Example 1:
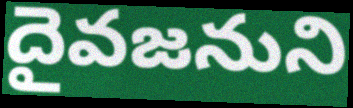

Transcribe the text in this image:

దైవజనుని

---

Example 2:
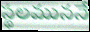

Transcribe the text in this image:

స్థలముననే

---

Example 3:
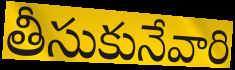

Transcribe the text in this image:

తీసుకునేవారి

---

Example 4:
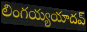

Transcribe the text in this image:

లింగయ్యయాదవ్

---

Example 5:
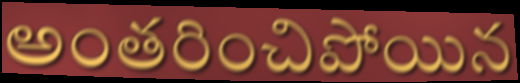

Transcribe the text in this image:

అంతరించిపోయిన